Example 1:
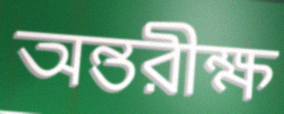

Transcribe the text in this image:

অন্তরীক্ষ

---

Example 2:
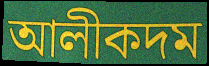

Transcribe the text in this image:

আলীকদম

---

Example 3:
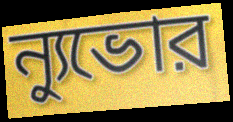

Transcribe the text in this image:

ন্যুভোর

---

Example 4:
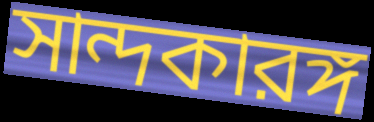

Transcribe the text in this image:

সান্দকারঙ্গ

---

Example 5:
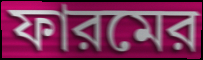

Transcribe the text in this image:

ফারমের